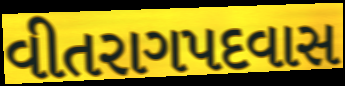
વીતરાગપદવાસ